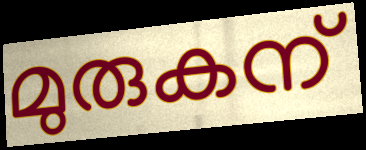
മുരുകന്